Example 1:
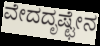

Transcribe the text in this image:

ವೇದದೃಷ್ಟೇನ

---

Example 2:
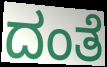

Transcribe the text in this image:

ದಂತೆ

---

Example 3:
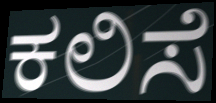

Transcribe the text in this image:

ಕಲಿಸೆ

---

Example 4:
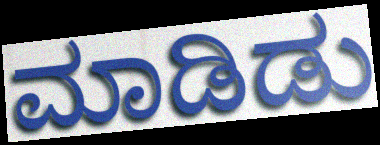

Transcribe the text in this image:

ಮಾಡಿಡು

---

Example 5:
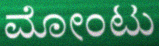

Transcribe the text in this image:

ಮೋಂಟು